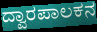
ದ್ವಾರಪಾಲಕನ